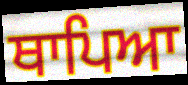
ਥਾਪਿਆ